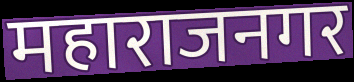
महाराजनगर